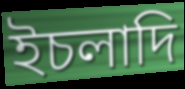
ইচলাদি